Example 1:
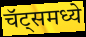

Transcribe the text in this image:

चॅट्समध्ये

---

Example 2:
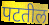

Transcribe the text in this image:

पटतील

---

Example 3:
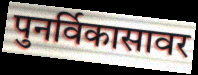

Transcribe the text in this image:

पुनर्विकासावर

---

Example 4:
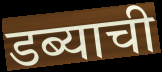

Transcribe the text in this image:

डब्याची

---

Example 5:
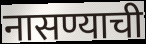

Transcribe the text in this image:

नासण्याची